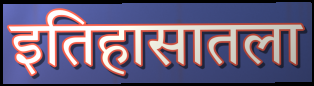
इतिहासातला